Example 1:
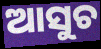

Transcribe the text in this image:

ଆସୁଚ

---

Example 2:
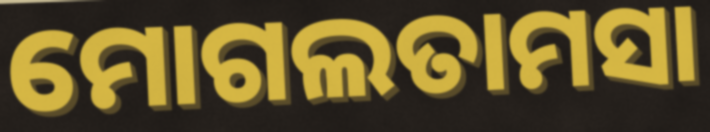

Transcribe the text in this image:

ମୋଗଲତାମସା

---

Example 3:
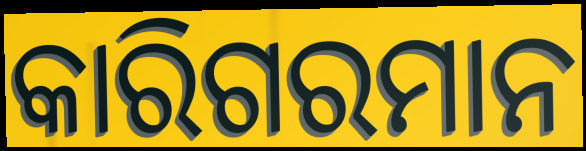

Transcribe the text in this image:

କାରିଗରମାନ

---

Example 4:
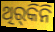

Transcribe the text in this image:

ଥିର୍‍କିନି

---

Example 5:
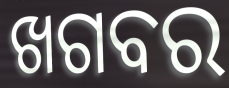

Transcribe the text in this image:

ଖଗବର